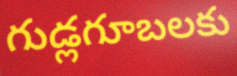
గుడ్లగూబలకు